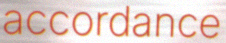
accordance